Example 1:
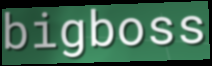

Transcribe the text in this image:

bigboss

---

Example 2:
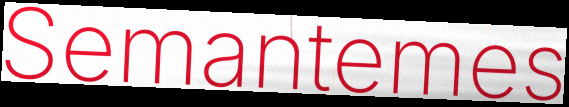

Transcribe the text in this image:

Semantemes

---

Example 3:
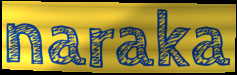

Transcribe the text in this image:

naraka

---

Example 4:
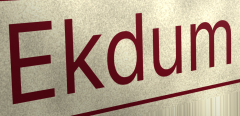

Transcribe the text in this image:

Ekdum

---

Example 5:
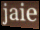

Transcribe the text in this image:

jaie